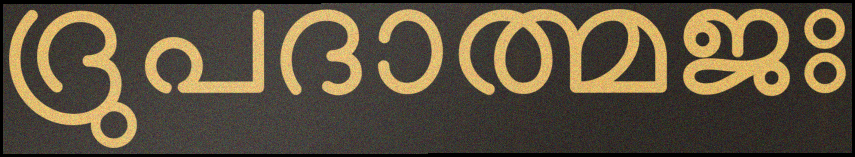
ദ്രുപദാത്മജഃ